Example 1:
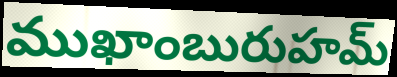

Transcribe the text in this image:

ముఖాంబురుహమ్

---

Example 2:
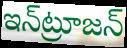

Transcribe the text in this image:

ఇన్‌ట్రూజన్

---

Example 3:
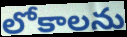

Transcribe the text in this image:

లోకాలను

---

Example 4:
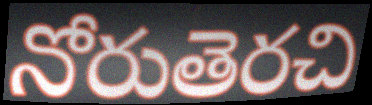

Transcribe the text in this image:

నోరుతెరచి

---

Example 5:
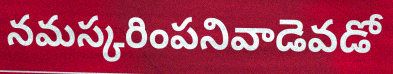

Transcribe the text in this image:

నమస్కరింపనివాడెవడో